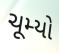
ચૂમ્યો